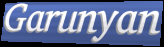
Garunyan